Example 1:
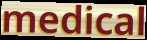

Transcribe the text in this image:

medical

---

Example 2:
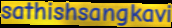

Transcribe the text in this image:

sathishsangkavi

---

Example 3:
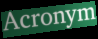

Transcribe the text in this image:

Acronym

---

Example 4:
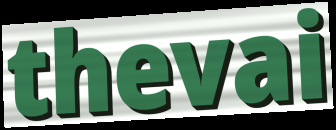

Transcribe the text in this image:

thevai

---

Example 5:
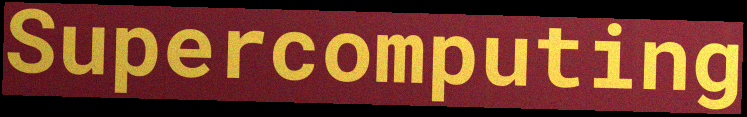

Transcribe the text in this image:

Supercomputing